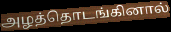
அழத்தொடங்கினால்